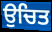
ਉਚਿਤ